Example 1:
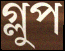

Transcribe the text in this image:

গ্লুপ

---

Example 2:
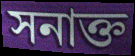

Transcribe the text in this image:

সনাক্ত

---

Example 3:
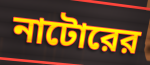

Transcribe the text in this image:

নাটোরের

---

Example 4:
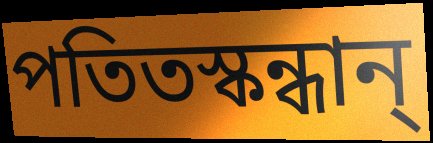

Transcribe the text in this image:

পতিতস্কন্ধান্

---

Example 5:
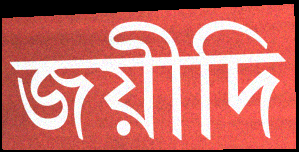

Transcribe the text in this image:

জয়ীদি